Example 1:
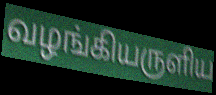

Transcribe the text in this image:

வழங்கியருளிய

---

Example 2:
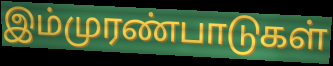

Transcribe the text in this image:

இம்முரண்பாடுகள்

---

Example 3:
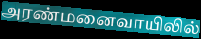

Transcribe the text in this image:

அரண்மனைவாயிலில்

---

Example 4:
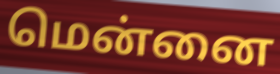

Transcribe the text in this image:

மென்னை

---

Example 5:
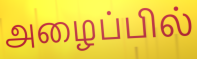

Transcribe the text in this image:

அழைப்பில்